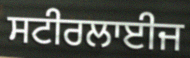
ਸਟੀਰਲਾਈਜ